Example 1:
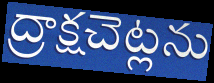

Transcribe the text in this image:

ద్రాక్షచెట్లను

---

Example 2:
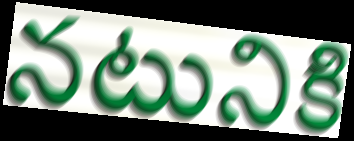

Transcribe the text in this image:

నటునికి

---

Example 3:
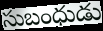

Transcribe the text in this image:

సుబంధుడు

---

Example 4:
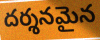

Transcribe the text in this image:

దర్శనమైన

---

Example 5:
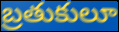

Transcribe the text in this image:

బ్రతుకులూ